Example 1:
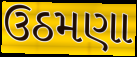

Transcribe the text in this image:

ઉઠમણા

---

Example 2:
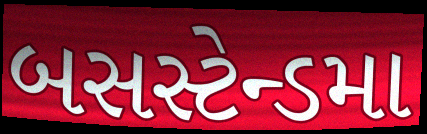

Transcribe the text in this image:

બસસ્ટેન્ડમા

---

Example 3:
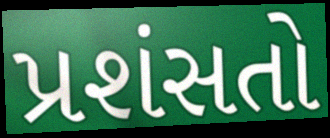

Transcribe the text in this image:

પ્રશંસતો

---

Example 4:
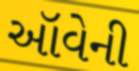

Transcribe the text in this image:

ઑવેની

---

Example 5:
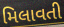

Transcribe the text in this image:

મિલાવતી